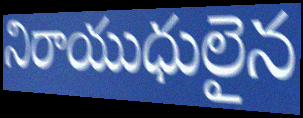
నిరాయుధులైన